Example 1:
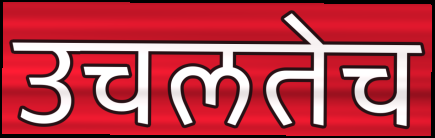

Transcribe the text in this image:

उचलतेच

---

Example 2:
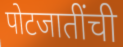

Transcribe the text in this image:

पोटजातींची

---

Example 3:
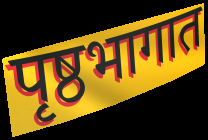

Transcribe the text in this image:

पृष्ठभागात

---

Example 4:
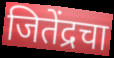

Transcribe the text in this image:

जितेंद्रचा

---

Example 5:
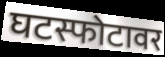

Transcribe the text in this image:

घटस्फोटावर